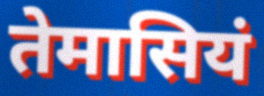
तेमासियं